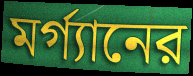
মর্গ্যানের